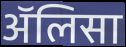
ॲलिसा